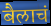
बैलाचं